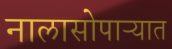
नालासोपाऱ्यात